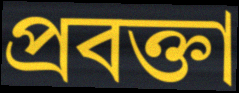
প্ৰবক্তা